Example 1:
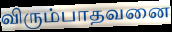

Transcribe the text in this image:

விரும்பாதவனை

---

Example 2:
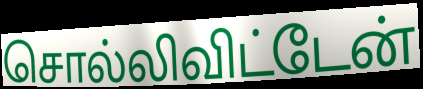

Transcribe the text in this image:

சொல்லிவிட்டேன்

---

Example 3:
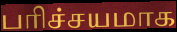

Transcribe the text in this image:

பரிச்சயமாக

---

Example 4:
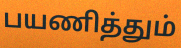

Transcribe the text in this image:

பயணித்தும்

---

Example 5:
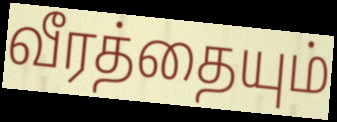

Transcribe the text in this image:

வீரத்தையும்